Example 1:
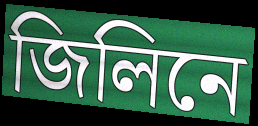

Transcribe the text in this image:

জিলিনে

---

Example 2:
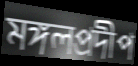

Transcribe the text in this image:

মঙ্গলপ্রদীপ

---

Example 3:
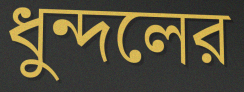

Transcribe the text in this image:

ধুন্দলের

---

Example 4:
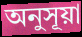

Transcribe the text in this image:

অনুসূয়া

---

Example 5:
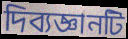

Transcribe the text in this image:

দিব্যজ্ঞানটি